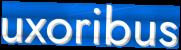
uxoribus